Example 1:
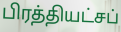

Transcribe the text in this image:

பிரத்தியட்சப்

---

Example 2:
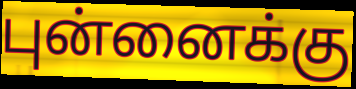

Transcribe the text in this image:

புன்னைக்கு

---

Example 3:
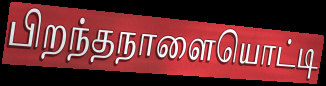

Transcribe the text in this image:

பிறந்தநாளையொட்டி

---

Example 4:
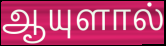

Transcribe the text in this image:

ஆயுளால்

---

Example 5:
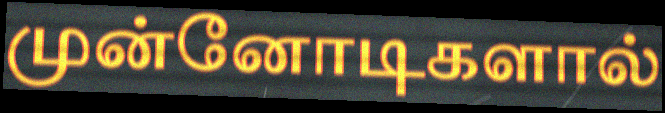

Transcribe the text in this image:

முன்னோடிகளால்